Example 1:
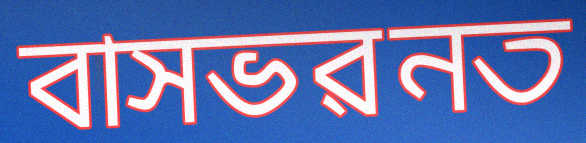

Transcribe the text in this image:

বাসভৱনত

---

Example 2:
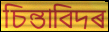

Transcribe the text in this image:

চিন্তাবিদৰ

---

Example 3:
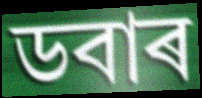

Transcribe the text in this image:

ডবাৰ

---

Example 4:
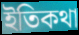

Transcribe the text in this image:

ইতিকথা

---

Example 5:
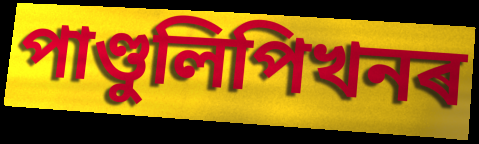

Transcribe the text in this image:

পাণ্ডুলিপিখনৰ